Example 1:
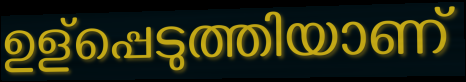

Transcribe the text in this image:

ഉള്പ്പെടുത്തിയാണ്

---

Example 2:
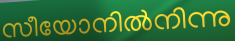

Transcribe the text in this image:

സീയോനിൽനിന്നു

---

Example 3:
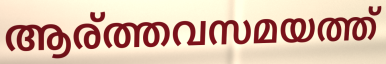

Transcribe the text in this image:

ആര്ത്തവസമയത്ത്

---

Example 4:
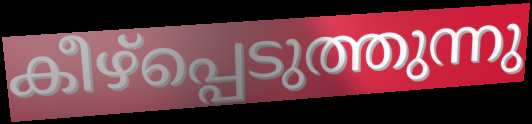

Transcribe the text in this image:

കീഴ്പ്പെടുത്തുന്നു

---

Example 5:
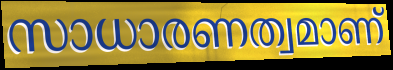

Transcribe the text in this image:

സാധാരണത്വമാണ്